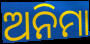
ଅନିମା